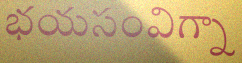
భయసంవిగ్నా